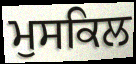
ਮੁਸਕਿਲ